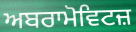
ਅਬਰਾਮੋਵਿਟਜ਼